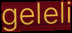
geleli